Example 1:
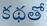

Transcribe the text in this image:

కథతో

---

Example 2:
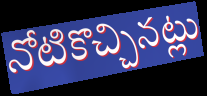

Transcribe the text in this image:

నోటికొచ్చినట్లు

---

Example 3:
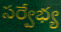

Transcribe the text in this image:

సర్వేభ్య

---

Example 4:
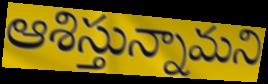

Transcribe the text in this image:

ఆశిస్తున్నామని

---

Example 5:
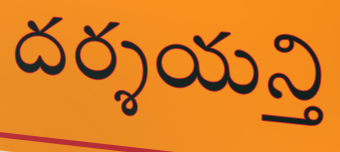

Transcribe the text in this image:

దర్శయన్తి